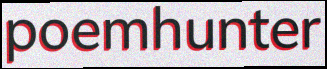
poemhunter